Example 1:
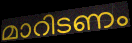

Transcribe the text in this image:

മാറിടണം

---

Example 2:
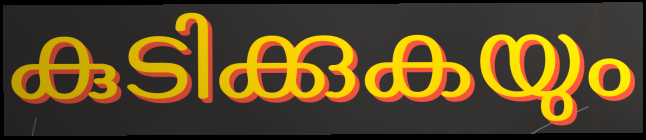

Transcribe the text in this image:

കുടിക്കുകയും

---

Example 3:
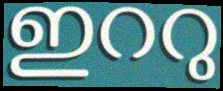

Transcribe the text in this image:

ഇററു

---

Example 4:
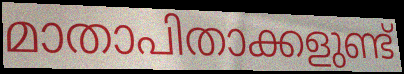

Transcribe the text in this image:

മാതാപിതാക്കളുണ്ട്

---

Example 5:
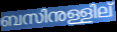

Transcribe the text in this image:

ബസിനുള്ളില്